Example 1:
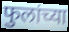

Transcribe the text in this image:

फुलांच्या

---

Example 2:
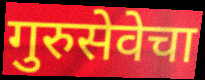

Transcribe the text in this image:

गुरुसेवेचा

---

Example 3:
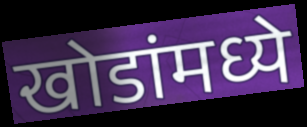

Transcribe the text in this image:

खोडांमध्ये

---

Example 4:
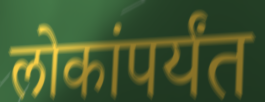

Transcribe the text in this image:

लोकांपर्यंत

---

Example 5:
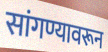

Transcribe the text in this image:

सांगण्यावरून